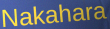
Nakahara